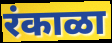
रंकाळा